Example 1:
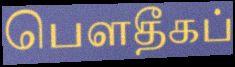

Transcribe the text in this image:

பௌதீகப்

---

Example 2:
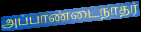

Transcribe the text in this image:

அப்பாண்டைநாதர்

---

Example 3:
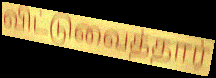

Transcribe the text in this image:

விட்டுவைத்தார்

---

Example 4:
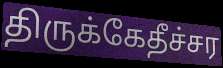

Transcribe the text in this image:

திருக்கேதீச்சர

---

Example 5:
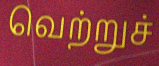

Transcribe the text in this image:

வெற்றுச்